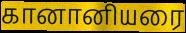
கானானியரை